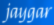
jaygar